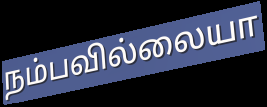
நம்பவில்லையா